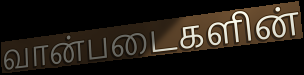
வான்படைகளின்